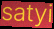
satyi